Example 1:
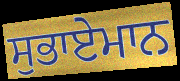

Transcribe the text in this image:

ਸੁਭਾਏਮਾਨ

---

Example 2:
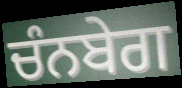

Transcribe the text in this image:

ਚੰਨਬੇਗ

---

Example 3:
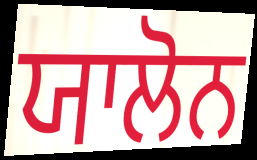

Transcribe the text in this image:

ਯਾਲੋਨ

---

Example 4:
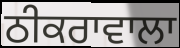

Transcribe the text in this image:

ਠੀਕਰਾਵਾਲਾ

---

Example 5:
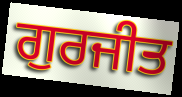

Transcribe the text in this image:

ਗੁਰਜੀਤ